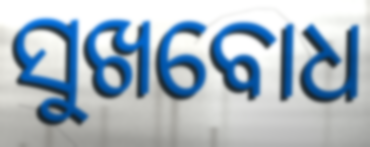
ସୁଖବୋଧ